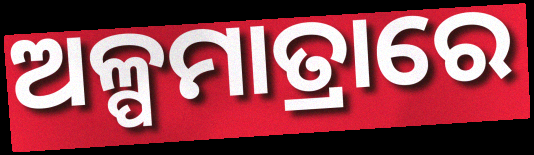
ଅଳ୍ପମାତ୍ରାରେ